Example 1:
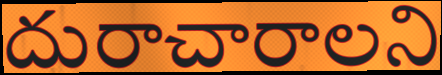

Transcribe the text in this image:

దురాచారాలని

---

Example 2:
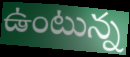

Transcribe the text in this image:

ఉంటున్న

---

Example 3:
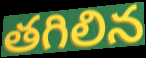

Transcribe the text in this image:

తగిలిన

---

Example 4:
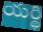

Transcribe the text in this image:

యర్థి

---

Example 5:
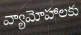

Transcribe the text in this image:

వ్యామోహాలకు